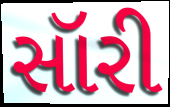
સૉરી